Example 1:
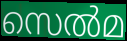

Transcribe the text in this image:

സെൽമ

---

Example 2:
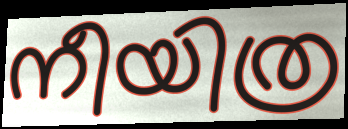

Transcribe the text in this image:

നീയിത്ര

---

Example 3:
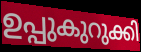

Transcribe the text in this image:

ഉപ്പുകുറുക്കി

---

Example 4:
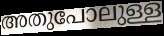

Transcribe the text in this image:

അതുപോലുള്ള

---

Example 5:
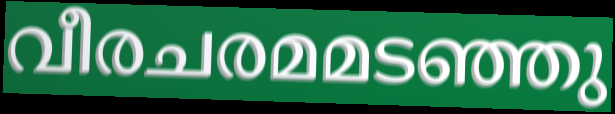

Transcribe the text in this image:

വീരചരമമടഞ്ഞു